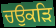
ਚਉਕੜਿ